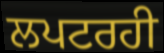
ਲਪਟਰਹੀ